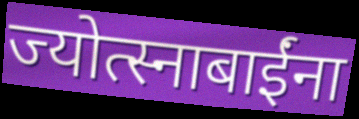
ज्योत्स्नाबाईंना